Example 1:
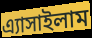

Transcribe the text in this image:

এ্যাসাইলাম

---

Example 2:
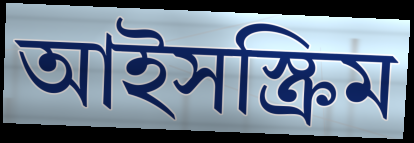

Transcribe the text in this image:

আইসস্ক্রিম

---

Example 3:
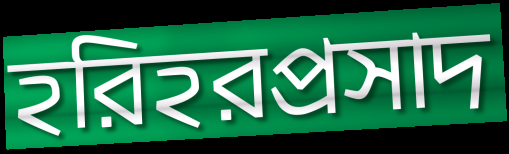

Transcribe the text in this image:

হরিহরপ্রসাদ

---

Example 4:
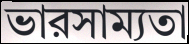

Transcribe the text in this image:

ভারসাম্যতা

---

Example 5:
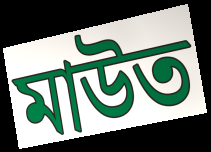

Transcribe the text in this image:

মাউত